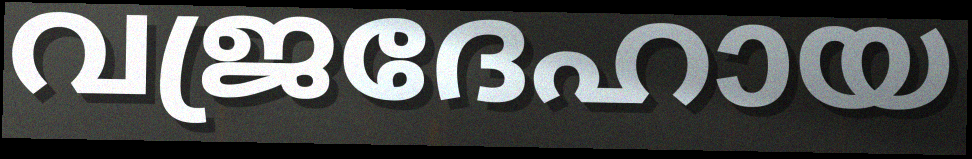
വജ്രദേഹായ